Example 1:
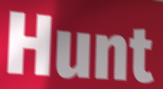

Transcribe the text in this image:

Hunt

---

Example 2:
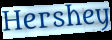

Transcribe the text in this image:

Hershey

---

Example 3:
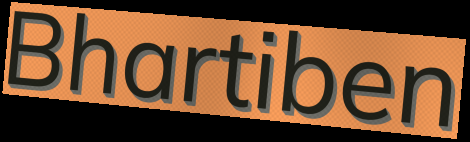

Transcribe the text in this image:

Bhartiben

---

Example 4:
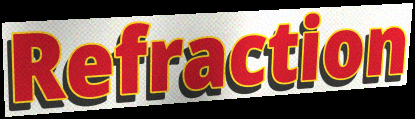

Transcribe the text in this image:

Refraction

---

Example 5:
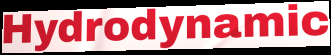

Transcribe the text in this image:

Hydrodynamic